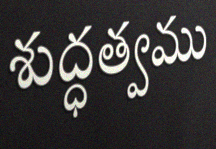
శుద్ధత్వము